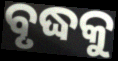
ବୃଦ୍ଧକୁ